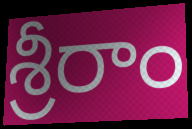
శ్రీరాం